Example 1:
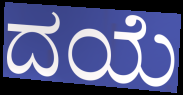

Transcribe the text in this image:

ದಯೆ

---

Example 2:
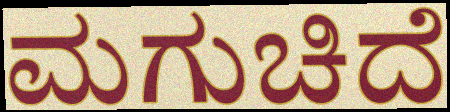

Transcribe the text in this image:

ಮಗುಚಿದೆ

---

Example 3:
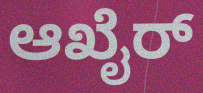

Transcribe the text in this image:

ಆಖೈರ್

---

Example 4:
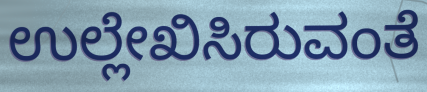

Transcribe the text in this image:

ಉಲ್ಲೇಖಿಸಿರುವಂತೆ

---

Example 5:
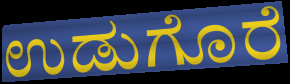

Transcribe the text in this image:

ಉಡುಗೊರೆ